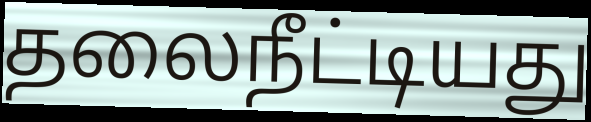
தலைநீட்டியது